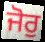
ਜੋਰੁ